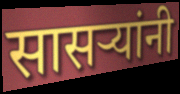
सासर्‍यांनी